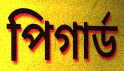
পিগার্ড